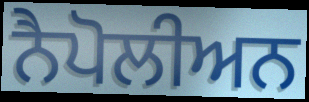
ਨੈਪੋਲੀਅਨ